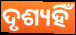
ଦୃଶ୍ୟହିଁ